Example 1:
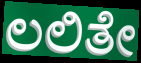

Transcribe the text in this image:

ಲಲಿತೇ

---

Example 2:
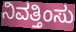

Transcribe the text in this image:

ನಿವತ್ತಿಂಸು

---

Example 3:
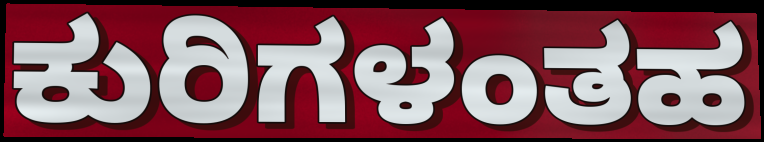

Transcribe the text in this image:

ಕುರಿಗಳಂತಹ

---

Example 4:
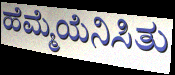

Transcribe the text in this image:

ಹೆಮ್ಮೆಯೆನಿಸಿತು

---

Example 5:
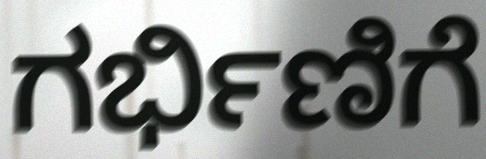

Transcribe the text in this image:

ಗರ್ಭಿಣಿಗೆ